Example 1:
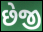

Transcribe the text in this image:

છેજી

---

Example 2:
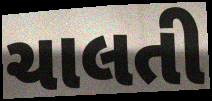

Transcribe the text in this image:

ચાલતી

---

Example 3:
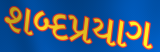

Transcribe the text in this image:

શબ્દપ્રયાગ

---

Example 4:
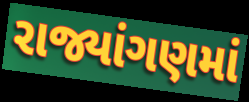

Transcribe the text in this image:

રાજ્યાંગણમાં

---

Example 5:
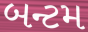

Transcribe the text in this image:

બન્ટમ